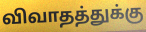
விவாதத்துக்கு